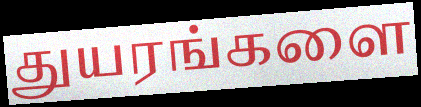
துயரங்களை